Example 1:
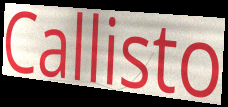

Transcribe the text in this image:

Callisto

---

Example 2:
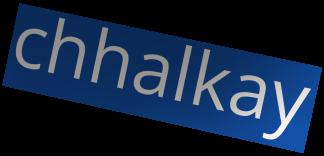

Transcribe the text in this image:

chhalkay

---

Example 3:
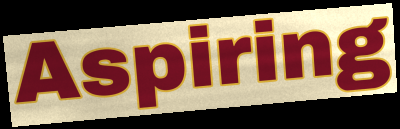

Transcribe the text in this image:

Aspiring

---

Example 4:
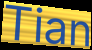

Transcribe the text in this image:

Tian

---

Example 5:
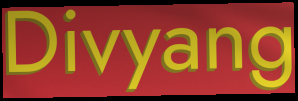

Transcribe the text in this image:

Divyang